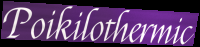
Poikilothermic